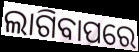
ଲାଗିବାପରେ